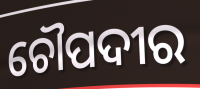
ଚୌପଦୀର